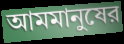
আমমানুষের